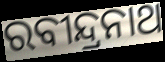
ରବୀନ୍ଦ୍ରନାଥ